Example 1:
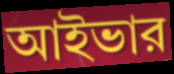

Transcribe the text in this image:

আইভার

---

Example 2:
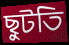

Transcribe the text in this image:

ছুটতি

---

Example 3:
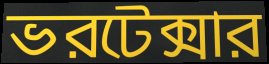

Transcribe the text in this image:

ভরটেক্সার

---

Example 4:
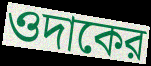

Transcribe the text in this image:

ওদাকের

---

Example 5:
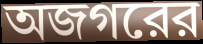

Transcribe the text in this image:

অজগরের